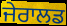
ਜੇਰਾਲਡ